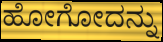
ಹೋಗೋದನ್ನು